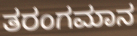
ತರಂಗಮಾನ